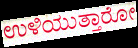
ಉಳಿಯುತ್ತಾರೋ